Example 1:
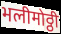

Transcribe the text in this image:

भलीमोठ्ठी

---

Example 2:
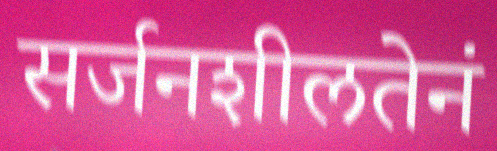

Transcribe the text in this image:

सर्जनशीलतेनं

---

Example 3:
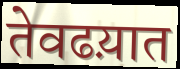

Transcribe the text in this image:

तेवढय़ात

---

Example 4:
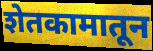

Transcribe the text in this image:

शेतकामातून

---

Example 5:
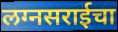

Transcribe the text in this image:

लग्नसराईचा